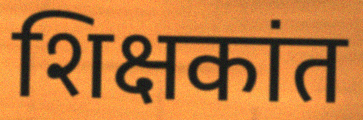
शिक्षकांत